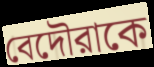
বেদৌরাকে